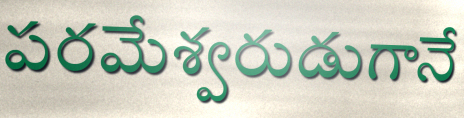
పరమేశ్వరుడుగానే